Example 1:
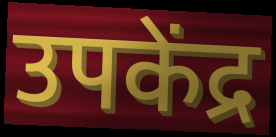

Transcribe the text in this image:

उपकेंद्र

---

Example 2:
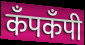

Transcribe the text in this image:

कँपकँपी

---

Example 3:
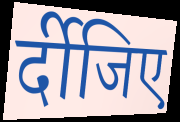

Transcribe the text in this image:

र्दीजिए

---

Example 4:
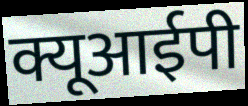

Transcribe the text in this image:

क्यूआईपी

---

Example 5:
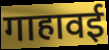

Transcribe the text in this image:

गाहावई